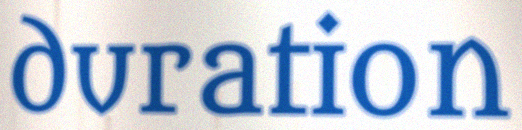
duration